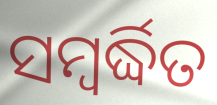
ସମ୍ବର୍ଦ୍ଧିତ